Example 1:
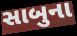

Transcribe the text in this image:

સાબુના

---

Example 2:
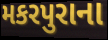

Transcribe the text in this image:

મકરપુરાના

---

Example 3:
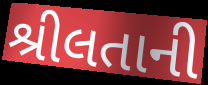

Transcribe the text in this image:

શ્રીલતાની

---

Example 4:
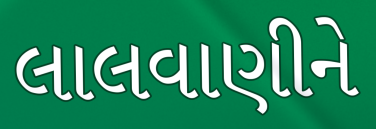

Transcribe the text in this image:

લાલવાણીને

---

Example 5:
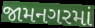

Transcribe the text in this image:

જામનગરમાં